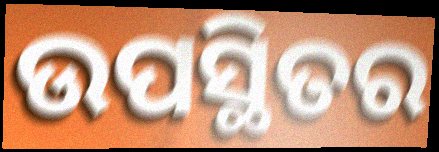
ଉପସ୍ଥିତର